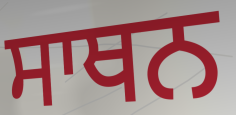
ਸਾਥਨ